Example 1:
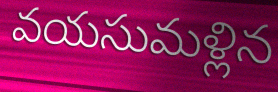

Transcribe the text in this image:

వయసుమళ్లిన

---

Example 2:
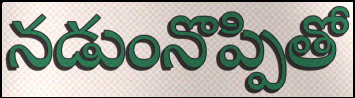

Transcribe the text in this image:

నడుంనొప్పితో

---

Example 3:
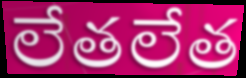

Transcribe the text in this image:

లేతలేత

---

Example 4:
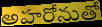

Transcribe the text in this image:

అహరోనుతో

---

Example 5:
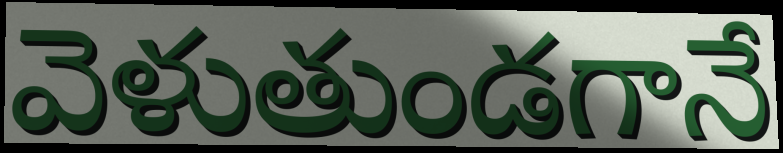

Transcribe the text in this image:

వెళుతుండగానే